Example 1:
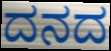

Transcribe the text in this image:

ದನದ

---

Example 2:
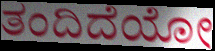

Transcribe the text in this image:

ತಂದಿದೆಯೋ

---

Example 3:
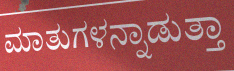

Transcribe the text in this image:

ಮಾತುಗಳನ್ನಾಡುತ್ತಾ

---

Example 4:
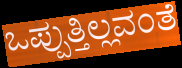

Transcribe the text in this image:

ಒಪ್ಪುತ್ತಿಲ್ಲವಂತೆ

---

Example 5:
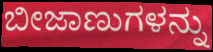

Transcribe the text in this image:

ಬೀಜಾಣುಗಳನ್ನು